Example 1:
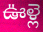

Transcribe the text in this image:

ఊళ్లె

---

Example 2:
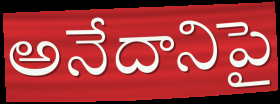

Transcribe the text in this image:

అనేదానిపై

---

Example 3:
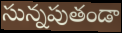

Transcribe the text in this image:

సున్నపుతండా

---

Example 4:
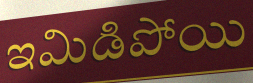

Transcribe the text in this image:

ఇమిడిపోయి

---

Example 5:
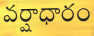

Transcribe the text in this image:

వర్షాధారం